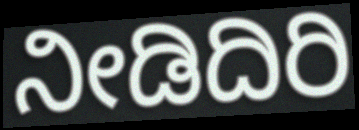
ನೀಡಿದಿರಿ